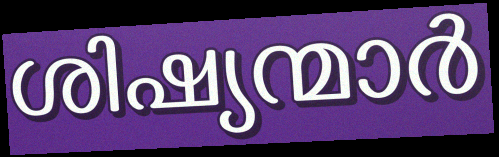
ശിഷ്യന്മാർ